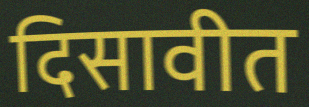
दिसावीत